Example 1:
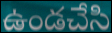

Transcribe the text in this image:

ఉండచేసి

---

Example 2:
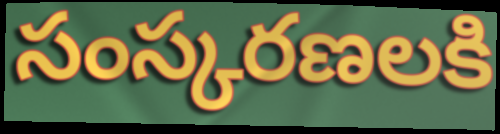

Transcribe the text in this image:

సంస్కరణలకి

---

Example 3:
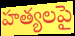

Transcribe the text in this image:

హత్యలపై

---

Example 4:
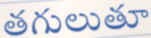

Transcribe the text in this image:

తగులుతూ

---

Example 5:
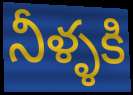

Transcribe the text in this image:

నీళ్ళకి